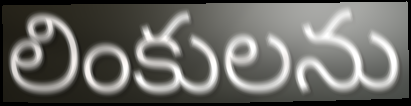
లింకులను